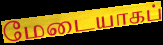
மேடையாகப்